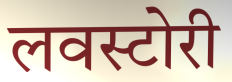
लवस्‍टोरी